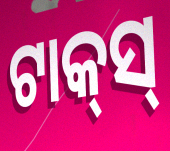
ଟାକ୍‍ସ୍